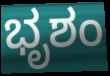
ಭೃಶಂ